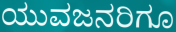
ಯುವಜನರಿಗೂ